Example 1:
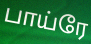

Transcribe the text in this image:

பாய்ரே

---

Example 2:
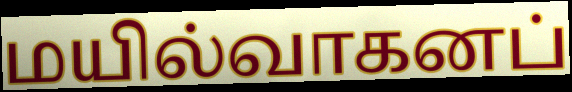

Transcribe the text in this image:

மயில்வாகனப்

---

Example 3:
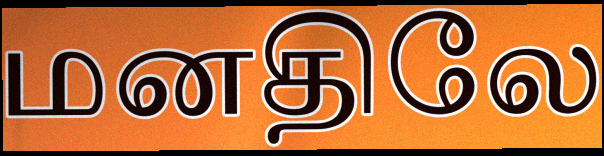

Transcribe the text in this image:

மனதிலே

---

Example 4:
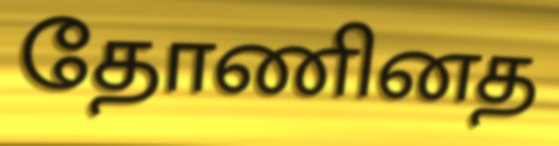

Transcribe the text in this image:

தோணினத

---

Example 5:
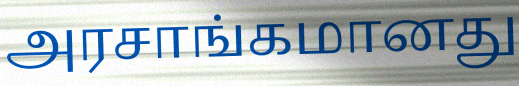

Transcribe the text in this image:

அரசாங்கமானது